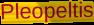
Pleopeltis